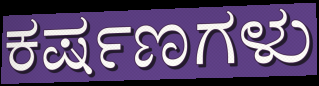
ಕರ್ಷಣಗಳು